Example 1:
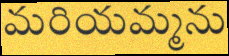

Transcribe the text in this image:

మరియమ్మను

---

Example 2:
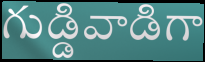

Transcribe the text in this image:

గుడ్డివాడిగా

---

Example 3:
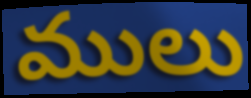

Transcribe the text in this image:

ములు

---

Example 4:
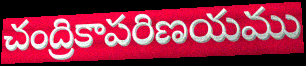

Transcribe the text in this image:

చంద్రికాపరిణయము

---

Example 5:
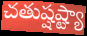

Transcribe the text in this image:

చతుష్షష్ట్యా